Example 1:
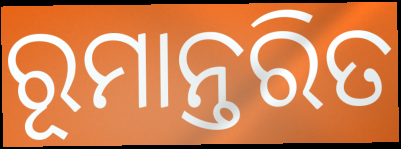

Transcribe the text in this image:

ରୂମାନ୍ତରିତ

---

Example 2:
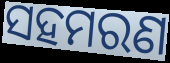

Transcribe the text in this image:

ସହମରଣ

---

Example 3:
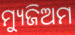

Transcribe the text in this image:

ମ୍ଯୁଜିଅମ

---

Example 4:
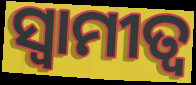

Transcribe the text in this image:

ସ୍ଵାମୀତ୍ବ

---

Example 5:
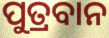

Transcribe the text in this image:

ପୁତ୍ରବାନ